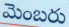
మెంబరు